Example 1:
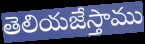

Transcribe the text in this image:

తెలియజేస్తాము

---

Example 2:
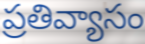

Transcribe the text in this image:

ప్రతివ్యాసం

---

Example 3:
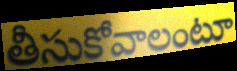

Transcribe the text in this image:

తీసుకోవాలంటూ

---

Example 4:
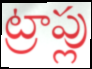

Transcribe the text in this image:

ట్రాప్లు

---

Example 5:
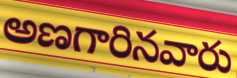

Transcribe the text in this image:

అణగారినవారు